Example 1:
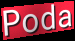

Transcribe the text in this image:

Poda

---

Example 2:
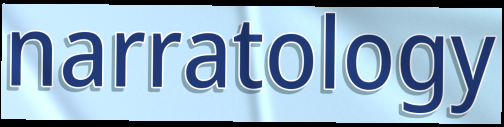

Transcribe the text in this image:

narratology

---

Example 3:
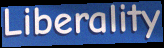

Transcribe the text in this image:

Liberality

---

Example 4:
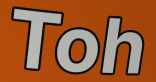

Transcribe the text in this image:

Toh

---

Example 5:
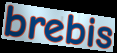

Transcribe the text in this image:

brebis